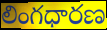
లింగధారణ